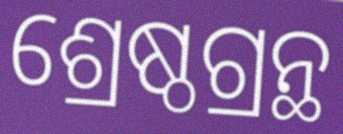
ଶ୍ରେଷ୍ଠଗ୍ରନ୍ଥ